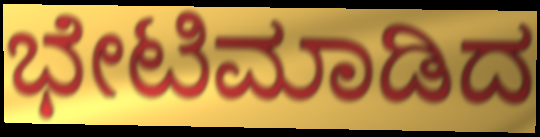
ಭೇಟಿಮಾಡಿದ